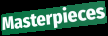
Masterpieces